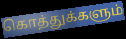
கொத்துக்களும்